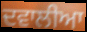
ਦਵਾਲੀਆ